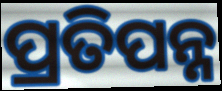
ପ୍ରତିପନ୍ନ